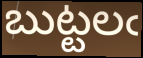
బుట్టలఁ